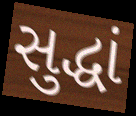
સુદ્ધાં